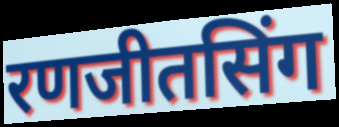
रणजीतसिंग